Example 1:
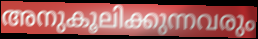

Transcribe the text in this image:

അനുകൂലിക്കുന്നവരും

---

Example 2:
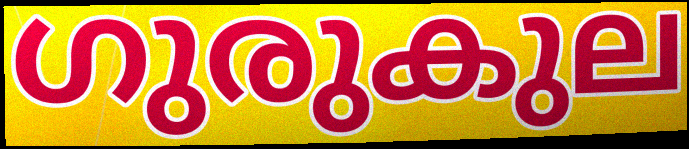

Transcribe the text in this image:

ഗുരുകുല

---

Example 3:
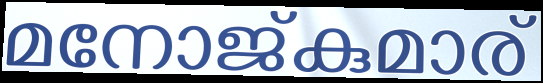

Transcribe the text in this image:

മനോജ്കുമാര്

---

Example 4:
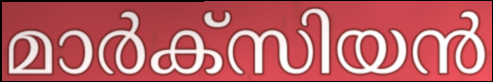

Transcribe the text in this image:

മാർക്സിയൻ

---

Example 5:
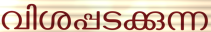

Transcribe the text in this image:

വിശപ്പടക്കുന്ന